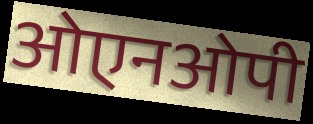
ओएनओपी